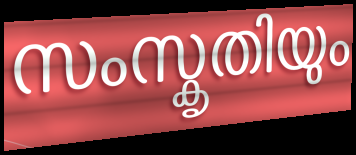
സംസ്കൃതിയും